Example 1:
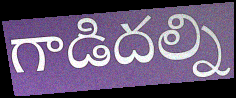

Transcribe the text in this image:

గాడిదల్ని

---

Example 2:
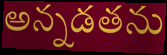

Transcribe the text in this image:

అన్నడతను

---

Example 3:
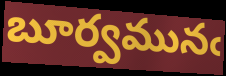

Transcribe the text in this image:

బూర్వమునఁ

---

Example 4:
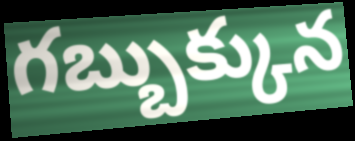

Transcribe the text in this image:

గబ్బుక్కున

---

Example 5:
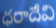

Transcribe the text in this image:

ధరాదేవి